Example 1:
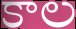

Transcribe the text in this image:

కాల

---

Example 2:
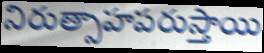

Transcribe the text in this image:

నిరుత్సాహపరుస్తాయి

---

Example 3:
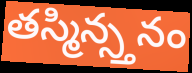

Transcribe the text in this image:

తస్మిన్స్తనం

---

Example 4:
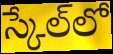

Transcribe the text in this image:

స్కేల్‌లో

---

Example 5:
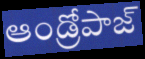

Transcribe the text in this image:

ఆండ్రోపాజ్